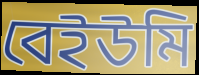
বেইউমি